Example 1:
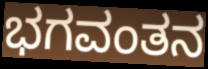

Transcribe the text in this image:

ಭಗವಂತನ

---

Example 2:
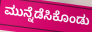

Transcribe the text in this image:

ಮುನ್ನೆಡೆಸಿಕೊಂಡು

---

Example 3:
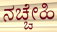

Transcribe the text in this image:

ನಚ್ಚೇಹಿ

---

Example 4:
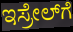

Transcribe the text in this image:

ಇಸ್ರೇಲ್‍ಗೆ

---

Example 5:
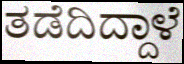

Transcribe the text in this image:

ತಡೆದಿದ್ದಾಳೆ